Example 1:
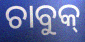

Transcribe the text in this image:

ଚାବୁକ୍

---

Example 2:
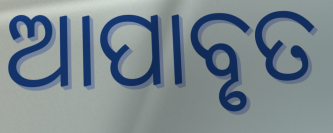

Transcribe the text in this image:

ଆପାବୃତ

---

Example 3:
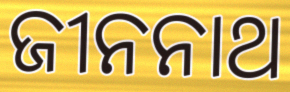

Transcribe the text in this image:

ଜୀନନାଥ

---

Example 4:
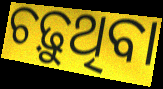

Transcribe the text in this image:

ଚଢ଼ୁଥିବା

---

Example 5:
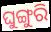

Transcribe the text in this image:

ଘୁଙ୍ଗୁରି